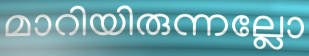
മാറിയിരുന്നല്ലോ